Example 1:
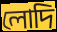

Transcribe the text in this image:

লোদি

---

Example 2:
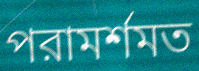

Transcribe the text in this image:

পরামর্শমত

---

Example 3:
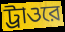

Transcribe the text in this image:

ট্রাওরে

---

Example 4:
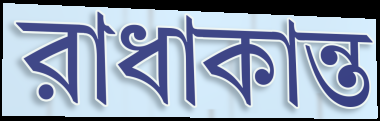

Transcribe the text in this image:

রাধাকান্ত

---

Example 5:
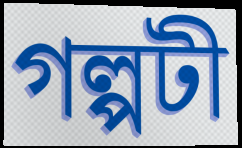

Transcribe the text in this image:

গল্পটী